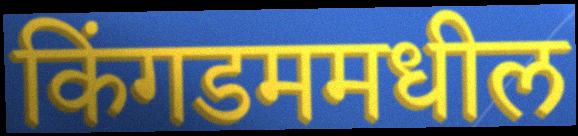
किंगडममधील